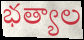
భత్యాల